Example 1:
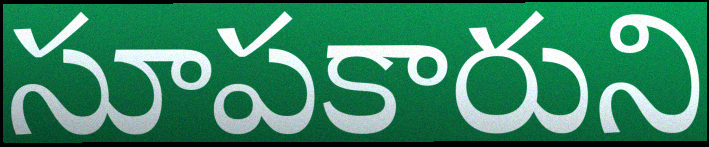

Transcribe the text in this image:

సూపకారుని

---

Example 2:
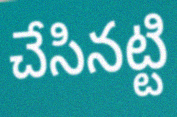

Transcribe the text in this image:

చేసినట్టి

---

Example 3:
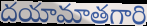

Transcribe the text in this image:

దయామాతగారి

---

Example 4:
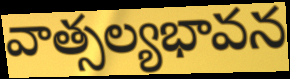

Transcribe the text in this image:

వాత్సల్యభావన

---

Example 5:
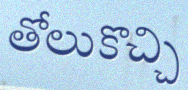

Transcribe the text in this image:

తోలుకొచ్చి